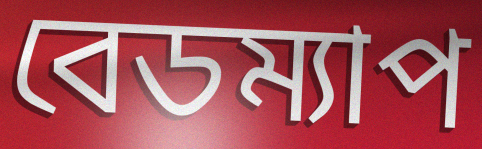
বেডম্যাপ